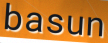
basun